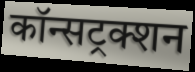
कॉन्सट्रक्शन